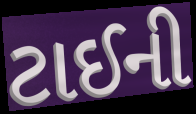
ટાઈની